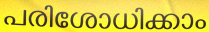
പരിശോധിക്കാം